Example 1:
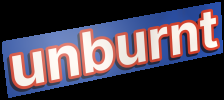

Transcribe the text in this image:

unburnt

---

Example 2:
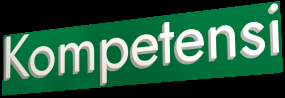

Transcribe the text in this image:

Kompetensi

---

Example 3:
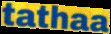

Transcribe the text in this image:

tathaa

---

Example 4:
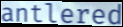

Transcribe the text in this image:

antlered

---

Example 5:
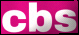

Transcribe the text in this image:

cbs